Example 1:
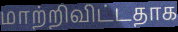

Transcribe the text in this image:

மாற்றிவிட்டதாக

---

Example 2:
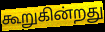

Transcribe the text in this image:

கூறுகின்றது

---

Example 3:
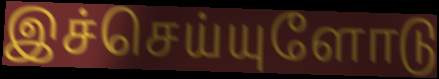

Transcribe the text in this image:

இச்செய்யுளோடு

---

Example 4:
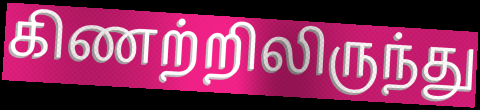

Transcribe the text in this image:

கிணற்றிலிருந்து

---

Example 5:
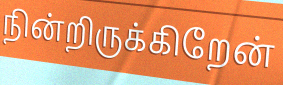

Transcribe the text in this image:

நின்றிருக்கிறேன்